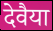
देवैया